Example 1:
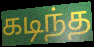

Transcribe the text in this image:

கடிந்த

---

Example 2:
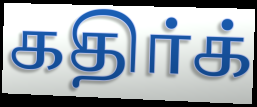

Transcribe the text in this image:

கதிர்க்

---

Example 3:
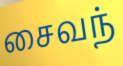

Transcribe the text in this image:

சைவந்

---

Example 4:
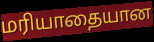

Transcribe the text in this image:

மரியாதையான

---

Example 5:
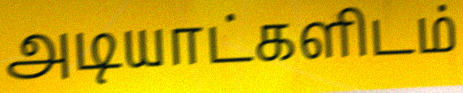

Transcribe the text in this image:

அடியாட்களிடம்